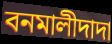
বনমালীদাদা